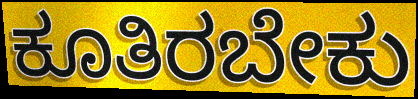
ಕೂತಿರಬೇಕು